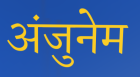
अंजुनेम